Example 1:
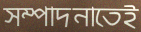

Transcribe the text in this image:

সম্পাদনাতেই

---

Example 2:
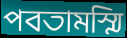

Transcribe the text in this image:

পবতামস্মি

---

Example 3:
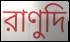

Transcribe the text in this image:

রাণুদি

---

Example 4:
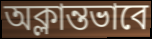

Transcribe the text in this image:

অক্লান্তভাবে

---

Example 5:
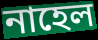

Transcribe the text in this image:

নাহেল